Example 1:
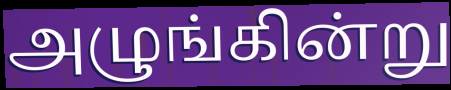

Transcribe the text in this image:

அழுங்கின்று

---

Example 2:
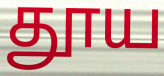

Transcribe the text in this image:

தூய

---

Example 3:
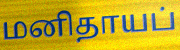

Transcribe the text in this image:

மனிதாயப்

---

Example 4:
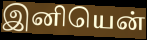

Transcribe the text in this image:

இனியென்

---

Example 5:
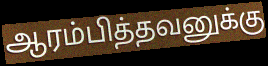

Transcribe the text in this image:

ஆரம்பித்தவனுக்கு